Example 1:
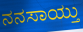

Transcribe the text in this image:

ನನಸಾಯ್ತು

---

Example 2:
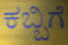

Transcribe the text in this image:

ಕಬ್ಬಿಗೆ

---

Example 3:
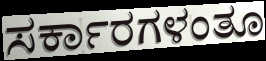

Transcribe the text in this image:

ಸರ್ಕಾರಗಳಂತೂ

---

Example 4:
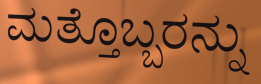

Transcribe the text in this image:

ಮತ್ತೊಬ್ಬರನ್ನು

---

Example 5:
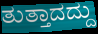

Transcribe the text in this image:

ತುತ್ತಾದದ್ದು